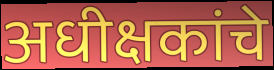
अधीक्षकांचे